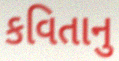
કવિતાનુ